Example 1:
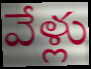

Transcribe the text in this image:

వేళ్లు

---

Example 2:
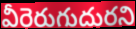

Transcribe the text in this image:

వీరెరుగుదురని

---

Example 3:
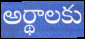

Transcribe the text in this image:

అర్థాలకు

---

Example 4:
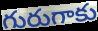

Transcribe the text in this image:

గురుగాకు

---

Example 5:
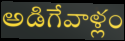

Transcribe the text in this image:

అడిగేవాళ్లం